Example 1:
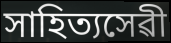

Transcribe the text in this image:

সাহিত্যসেৱী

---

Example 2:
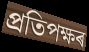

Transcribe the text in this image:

প্ৰতিপক্ষৰ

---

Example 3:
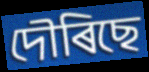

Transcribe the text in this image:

দৌৰিছে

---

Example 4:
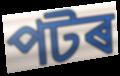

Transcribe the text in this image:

পটৰ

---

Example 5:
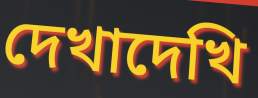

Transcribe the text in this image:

দেখাদেখি